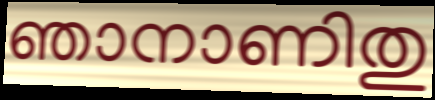
ഞാനാണിതു